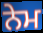
ਨੇਮ